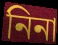
নিনা